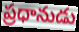
ప్రధానుడు